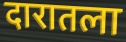
दारातला